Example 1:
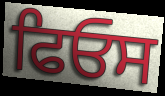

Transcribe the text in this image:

ਫਿਓਸ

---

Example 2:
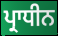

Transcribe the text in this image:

ਪ੍ਰਾਧੀਨ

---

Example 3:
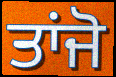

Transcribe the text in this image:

ਤਾਂਜੋ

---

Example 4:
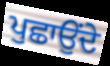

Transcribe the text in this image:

ਪੁਛਾਉਂਦੇ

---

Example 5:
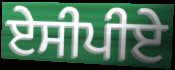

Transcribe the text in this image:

ਏਸੀਪੀਏ